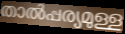
താൽപ്പര്യമുള്ള